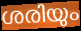
ശരിയും